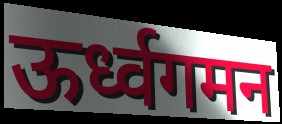
ऊर्ध्वगमन